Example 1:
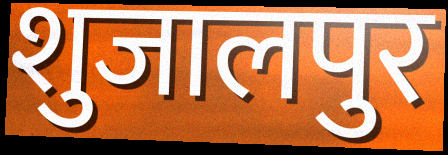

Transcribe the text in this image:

शुजालपुर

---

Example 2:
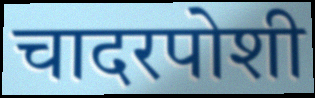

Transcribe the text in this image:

चादरपोशी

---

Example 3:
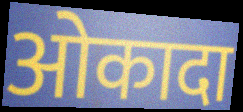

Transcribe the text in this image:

ओकादा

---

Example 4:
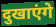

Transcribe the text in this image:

दुखाएंगे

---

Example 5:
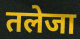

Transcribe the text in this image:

तलेजा